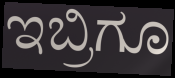
ಇಬ್ರಿಗೂ